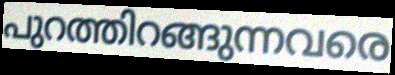
പുറത്തിറങ്ങുന്നവരെ